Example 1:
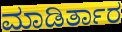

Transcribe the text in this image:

ಮಾಡಿರ್ತಾರ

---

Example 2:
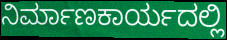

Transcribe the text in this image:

ನಿರ್ಮಾಣಕಾರ್ಯದಲ್ಲಿ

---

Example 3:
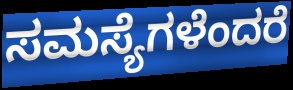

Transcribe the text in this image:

ಸಮಸ್ಯೆಗಳೆಂದರೆ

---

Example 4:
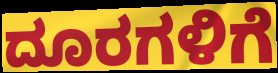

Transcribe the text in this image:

ದೂರಗಳಿಗೆ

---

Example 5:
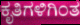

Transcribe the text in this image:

ಕೃತಿಗಳಿಗಿಂತ